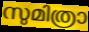
സുമിത്രാ